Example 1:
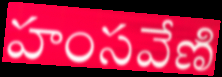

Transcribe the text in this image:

హంసవేణి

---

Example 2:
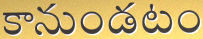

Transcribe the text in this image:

కానుండటం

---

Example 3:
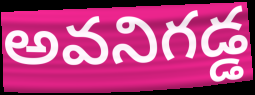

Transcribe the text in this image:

అవనిగడ్డ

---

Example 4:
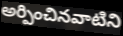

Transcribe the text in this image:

అర్పించినవాటిని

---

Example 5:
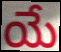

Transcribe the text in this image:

యే